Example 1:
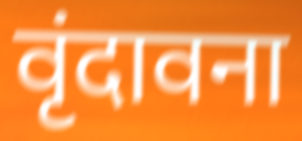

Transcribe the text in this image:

वृंदावना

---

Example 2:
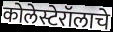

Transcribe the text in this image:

कोलेस्टेरॉलाचे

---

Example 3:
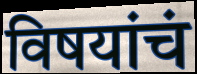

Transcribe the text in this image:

विषयांचं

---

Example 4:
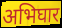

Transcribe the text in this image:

अभिघार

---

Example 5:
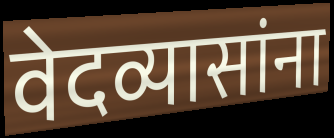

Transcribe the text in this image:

वेदव्यासांना